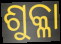
ଶୁକ୍ଳା